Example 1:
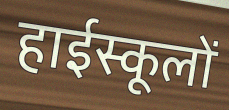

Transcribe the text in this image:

हाईस्कूलों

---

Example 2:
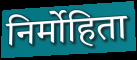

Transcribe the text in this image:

निर्मोहिता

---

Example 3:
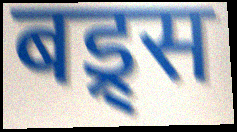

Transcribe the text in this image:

बड्र्स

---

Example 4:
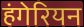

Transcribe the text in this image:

हंगेरियन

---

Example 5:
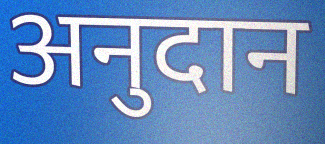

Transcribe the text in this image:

अनुदान